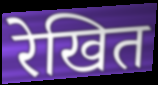
रेखित